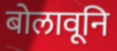
बोलावूनि